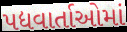
પદ્યવાર્તાઓમાં